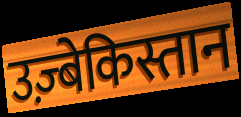
उज़्बेकिस्तान